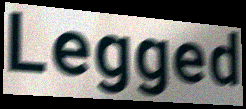
Legged